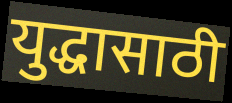
युद्धासाठी